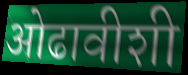
ओढावीशी